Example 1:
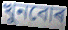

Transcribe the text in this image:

খুনবোৰ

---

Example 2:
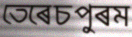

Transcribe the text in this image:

তেৰেচপুৰম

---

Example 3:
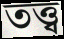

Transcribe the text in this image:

তত্ত্ব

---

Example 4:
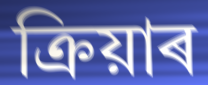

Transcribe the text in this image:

ক্ৰিয়াৰ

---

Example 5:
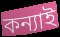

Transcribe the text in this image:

কন্যাই